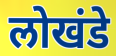
लोखंडे